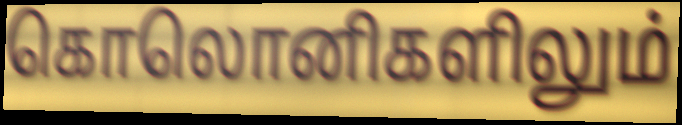
கொலொனிகளிலும்